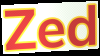
Zed